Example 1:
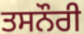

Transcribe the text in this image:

ਤਸਨੌਰੀ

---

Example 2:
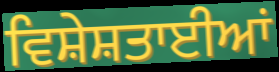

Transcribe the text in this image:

ਵਿਸ਼ੇਸ਼ਤਾਈਆਂ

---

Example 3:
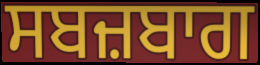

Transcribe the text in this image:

ਸਬਜ਼ਬਾਗ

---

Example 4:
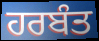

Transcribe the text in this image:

ਹਰਬੰਤ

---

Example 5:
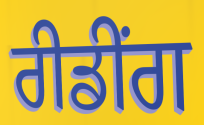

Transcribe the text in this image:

ਰੀਡੀਂਗ